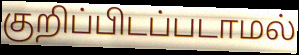
குறிப்பிடப்படாமல்